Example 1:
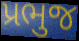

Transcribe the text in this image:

પ્રભુજ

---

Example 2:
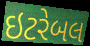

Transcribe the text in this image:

ઇટરેબલ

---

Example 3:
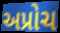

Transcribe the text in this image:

અપ્રોચ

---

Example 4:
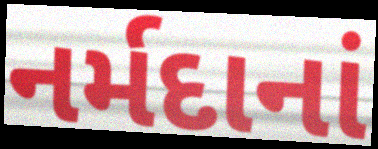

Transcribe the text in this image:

નર્મદાનાં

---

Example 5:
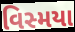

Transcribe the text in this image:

વિસ્મયા